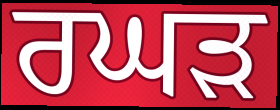
ਰਘੜ